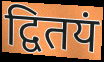
द्वितयं